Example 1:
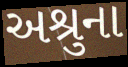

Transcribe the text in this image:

અશ્રુના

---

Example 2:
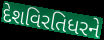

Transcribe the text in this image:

દેશવિરતિધરને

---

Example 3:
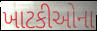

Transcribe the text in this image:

ખાટકીઓના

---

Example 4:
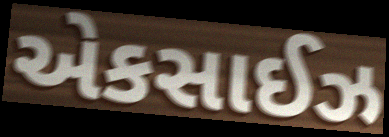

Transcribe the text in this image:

એકસાઈઝ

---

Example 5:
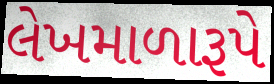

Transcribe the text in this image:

લેખમાળારૂપે